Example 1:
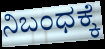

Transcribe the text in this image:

ನಿಬಂಧಕ್ಕೆ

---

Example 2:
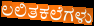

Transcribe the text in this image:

ಲಲಿತಕಲೆಗಳು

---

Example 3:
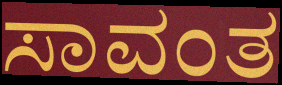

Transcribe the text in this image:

ಸಾವಂತ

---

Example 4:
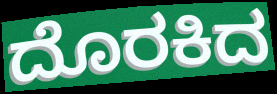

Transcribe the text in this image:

ದೊರಕಿದ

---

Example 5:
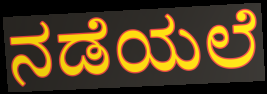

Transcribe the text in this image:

ನಡೆಯಲೆ